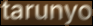
tarunyo